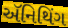
ઍનિથિંગ